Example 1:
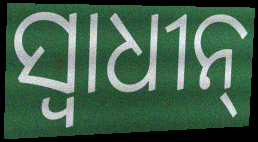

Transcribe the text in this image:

ସ୍ଵାଧୀନ୍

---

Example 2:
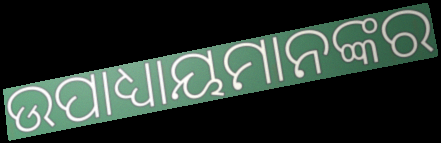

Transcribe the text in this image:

ଉପାଧ୍ୟାୟମାନଙ୍କର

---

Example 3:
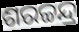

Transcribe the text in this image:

ଶରଚ୍ଚନ୍ଦ୍ର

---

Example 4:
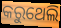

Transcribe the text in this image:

କରୁଥେଲି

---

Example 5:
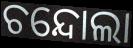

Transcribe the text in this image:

ଚନ୍ଦୋଲା